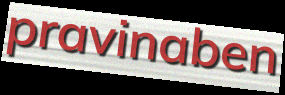
pravinaben